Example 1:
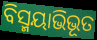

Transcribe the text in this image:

ବିସ୍ମୟାଭିଭୂତ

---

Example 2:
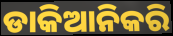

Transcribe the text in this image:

ଡାକିଆନିକରି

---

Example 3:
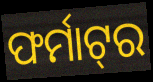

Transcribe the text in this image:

ଫର୍ମାଟ୍‌ର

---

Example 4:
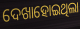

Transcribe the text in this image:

ଦେଖାହୋଇଥିଲା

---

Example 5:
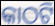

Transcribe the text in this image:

କାଠଟି